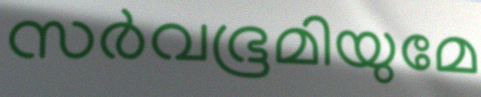
സർവഭൂമിയുമേ